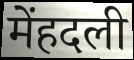
मेंहदली